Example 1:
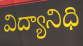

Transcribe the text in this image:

విద్యానిధి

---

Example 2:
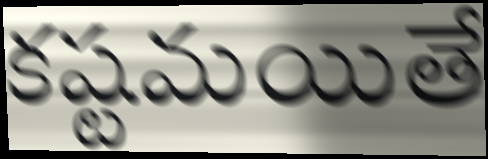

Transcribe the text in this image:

కష్టమయితే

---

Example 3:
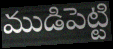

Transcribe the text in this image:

ముడిపెట్టి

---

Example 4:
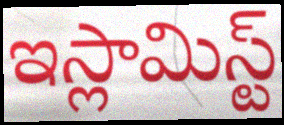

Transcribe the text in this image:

ఇస్లామిస్ట్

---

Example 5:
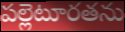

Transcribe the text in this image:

పల్లెటూరతను